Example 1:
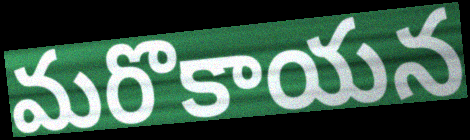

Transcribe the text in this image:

మరొకాయన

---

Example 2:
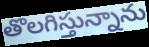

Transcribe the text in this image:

తొలగిస్తున్నాను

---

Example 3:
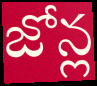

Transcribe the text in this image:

జోన్ల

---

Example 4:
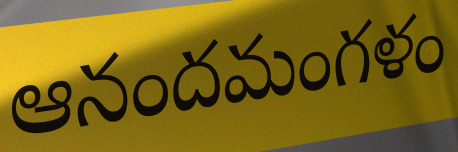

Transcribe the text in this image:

ఆనందమంగళం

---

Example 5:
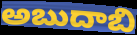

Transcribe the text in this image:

అబుదాబి